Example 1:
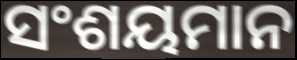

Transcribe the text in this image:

ସଂଶୟମାନ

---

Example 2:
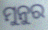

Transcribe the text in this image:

ମୁନୁର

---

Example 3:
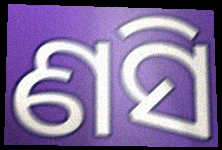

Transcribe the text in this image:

ଣସି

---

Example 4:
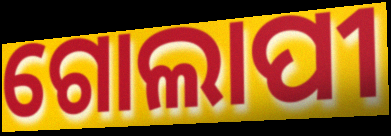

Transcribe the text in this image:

ଗୋଲାପୀ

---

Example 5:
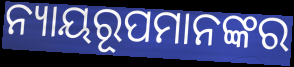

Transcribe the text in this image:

ନ୍ୟାୟରୂପମାନଙ୍କର